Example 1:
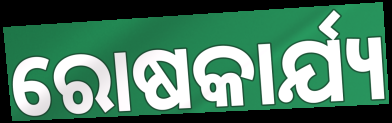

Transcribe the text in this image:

ରୋଷକାର୍ଯ୍ୟ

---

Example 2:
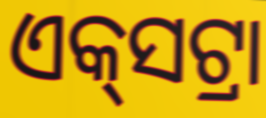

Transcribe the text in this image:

ଏକ୍‍ସଟ୍ରା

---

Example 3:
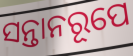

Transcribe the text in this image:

ସନ୍ତାନରୂପେ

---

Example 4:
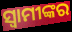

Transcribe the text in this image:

ସ୍ୱାମୀଙ୍କର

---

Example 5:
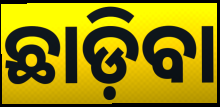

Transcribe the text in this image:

ଛାଡ଼ିବା